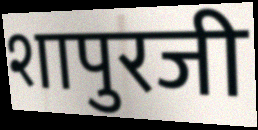
शापुरजी